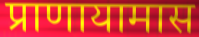
प्राणायामास